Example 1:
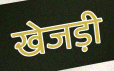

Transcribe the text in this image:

खेजड़ी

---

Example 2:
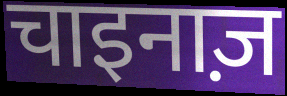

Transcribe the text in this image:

चाइनाज़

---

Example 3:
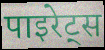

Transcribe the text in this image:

पाइरेट्स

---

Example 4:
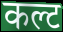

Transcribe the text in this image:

कल्ट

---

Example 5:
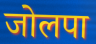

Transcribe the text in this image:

जोलपा